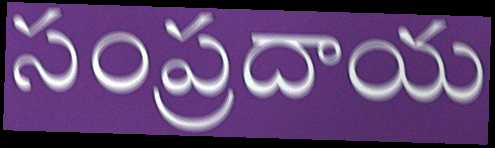
సంప్రదాయ